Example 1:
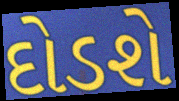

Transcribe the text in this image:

દોડશે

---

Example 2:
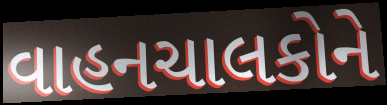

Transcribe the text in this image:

વાહનચાલકોને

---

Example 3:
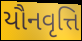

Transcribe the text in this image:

યૌનવૃત્તિ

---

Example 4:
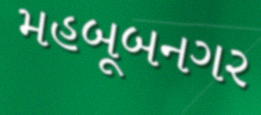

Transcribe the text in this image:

મહબૂબનગર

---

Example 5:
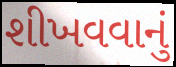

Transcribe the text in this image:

શીખવવાનું